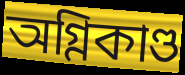
অগ্নিকাণ্ড